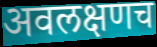
अवलक्षणच